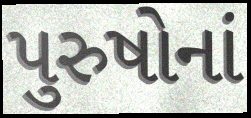
પુરુષોનાં